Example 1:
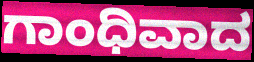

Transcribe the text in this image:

ಗಾಂಧಿವಾದ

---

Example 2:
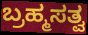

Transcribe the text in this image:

ಬ್ರಹ್ಮಸತ್ವ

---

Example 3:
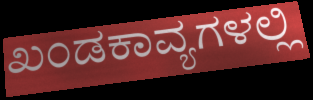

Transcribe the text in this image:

ಖಂಡಕಾವ್ಯಗಳಲ್ಲಿ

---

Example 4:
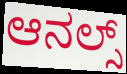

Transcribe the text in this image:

ಆನಲ್ಸ್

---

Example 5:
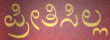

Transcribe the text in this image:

ಪ್ರೀತಿಸಿಲ್ಲ